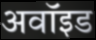
अवॉइड